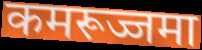
कमरूज्जमा